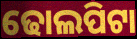
ଢୋଲପିଟା